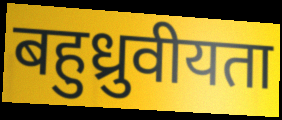
बहुध्रुवीयता